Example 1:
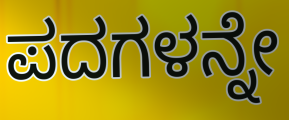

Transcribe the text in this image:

ಪದಗಳನ್ನೇ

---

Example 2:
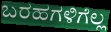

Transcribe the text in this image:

ಬರಹಗಳಿಗೆಲ್ಲ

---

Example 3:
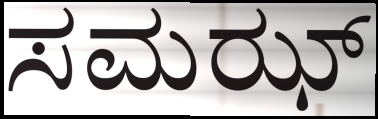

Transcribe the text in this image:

ಸಮಝ್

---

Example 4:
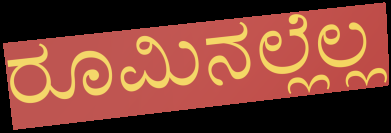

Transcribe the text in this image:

ರೂಮಿನಲ್ಲೆಲ್ಲ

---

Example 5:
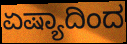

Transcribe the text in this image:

ಏಷ್ಯಾದಿಂದ